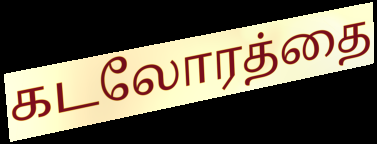
கடலோரத்தை